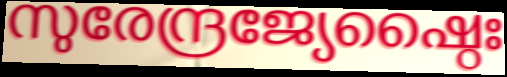
സുരേന്ദ്രജ്യേഷ്ഠൈഃ